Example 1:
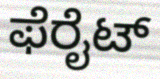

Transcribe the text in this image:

ಫೆರೈಟ್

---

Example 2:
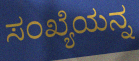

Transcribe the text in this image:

ಸಂಖ್ಯೆಯನ್ನ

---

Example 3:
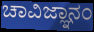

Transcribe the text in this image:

ಚಾವಿಜ್ಞಾನಂ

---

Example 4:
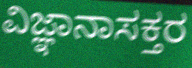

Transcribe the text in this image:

ವಿಜ್ಞಾನಾಸಕ್ತರ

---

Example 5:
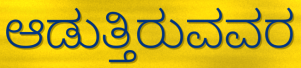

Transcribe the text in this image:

ಆಡುತ್ತಿರುವವರ